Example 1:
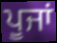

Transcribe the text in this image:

ਪੂਜਾਂ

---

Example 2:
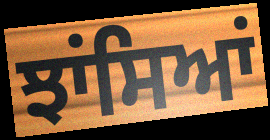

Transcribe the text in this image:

ਝਾਂਸਿਆਂ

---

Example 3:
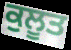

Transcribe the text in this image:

ਕੁਲੂਤ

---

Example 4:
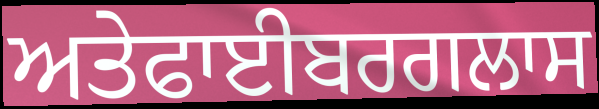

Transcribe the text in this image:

ਅਤੇਫਾਈਬਰਗਲਾਸ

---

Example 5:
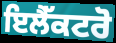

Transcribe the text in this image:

ਇਲੈੱਕਟਰੋ